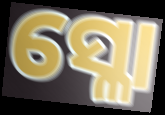
ସ୍ଳୋ